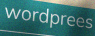
wordprees